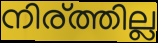
നിര്ത്തില്ല